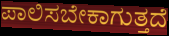
ಪಾಲಿಸಬೇಕಾಗುತ್ತದೆ